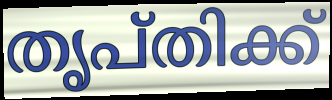
തൃപ്തിക്ക്